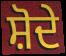
ਸ਼ੋਦੇ